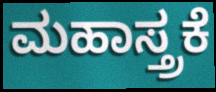
ಮಹಾಸ್ತ್ರಕೆ